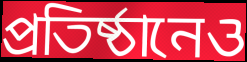
প্রতিষ্ঠানেও